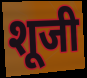
शूजी